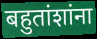
बहुतांशांना